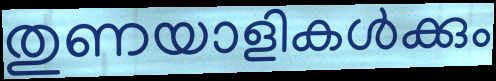
തുണയാളികൾക്കും